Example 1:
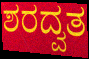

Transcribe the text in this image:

ಶರದ್ವತ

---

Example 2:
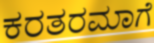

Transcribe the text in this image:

ಕರತರಮಾಗೆ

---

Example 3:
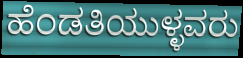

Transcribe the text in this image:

ಹೆಂಡತಿಯುಳ್ಳವರು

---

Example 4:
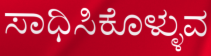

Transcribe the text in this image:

ಸಾಧಿಸಿಕೊಳ್ಳುವ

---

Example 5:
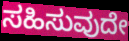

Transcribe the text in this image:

ಸಹಿಸುವುದೇ